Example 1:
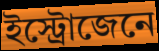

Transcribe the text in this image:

ইস্ট্রোজেনে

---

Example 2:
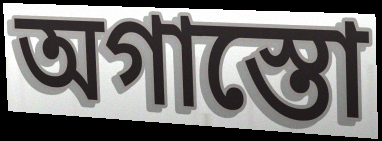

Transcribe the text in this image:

অগাস্তো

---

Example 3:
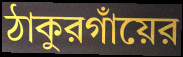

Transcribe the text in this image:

ঠাকুরগাঁয়ের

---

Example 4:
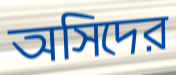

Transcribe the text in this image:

অসিদের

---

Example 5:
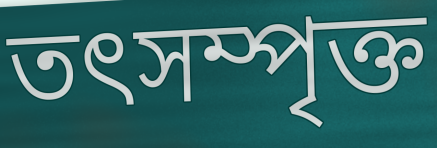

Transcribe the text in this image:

তৎসম্পৃক্ত